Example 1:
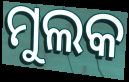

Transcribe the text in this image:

ମୁଲକ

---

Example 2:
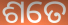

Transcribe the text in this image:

ଶତେ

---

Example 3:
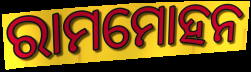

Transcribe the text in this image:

ରାମମୋହନ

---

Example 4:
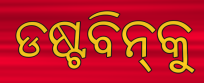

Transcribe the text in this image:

ଡଷ୍ଟବିନ୍‌କୁ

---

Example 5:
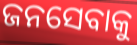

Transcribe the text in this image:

ଜନସେବାକୁ